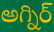
అగ్నిర్